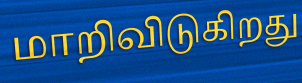
மாறிவிடுகிறது